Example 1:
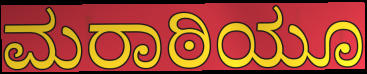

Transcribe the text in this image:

ಮರಾಠಿಯೂ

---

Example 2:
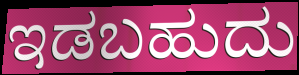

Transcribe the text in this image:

ಇಡಬಹುದು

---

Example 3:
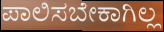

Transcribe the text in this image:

ಪಾಲಿಸಬೇಕಾಗಿಲ್ಲ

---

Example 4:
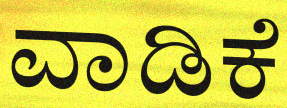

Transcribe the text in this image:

ವಾಡಿಕೆ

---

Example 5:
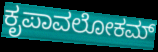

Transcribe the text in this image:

ಕೃಪಾವಲೋಕಮ್